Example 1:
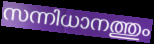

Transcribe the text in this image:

സന്നിധാനത്തും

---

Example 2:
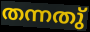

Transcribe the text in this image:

തന്നതു്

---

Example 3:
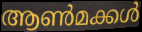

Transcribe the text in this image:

ആൺമക്കൾ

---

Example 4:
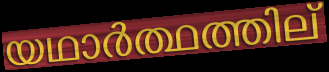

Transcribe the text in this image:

യഥാർത്ഥത്തില്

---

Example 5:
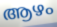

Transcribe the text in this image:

ആഴം